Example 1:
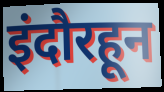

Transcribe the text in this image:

इंदौरहून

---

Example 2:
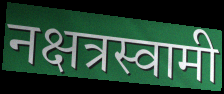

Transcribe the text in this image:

नक्षत्रस्वामी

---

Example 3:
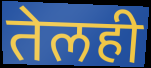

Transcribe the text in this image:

तेलही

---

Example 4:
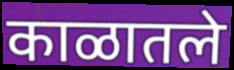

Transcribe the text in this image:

काळातले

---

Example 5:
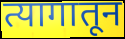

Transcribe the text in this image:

त्यागातून